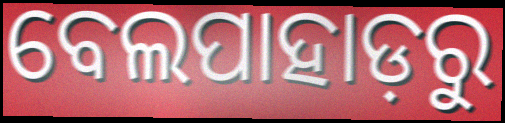
ବେଲପାହାଡ଼ରୁ